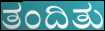
ತಂದಿತು